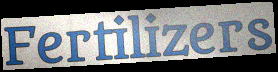
Fertilizers